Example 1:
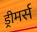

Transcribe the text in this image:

ड्रीमर्स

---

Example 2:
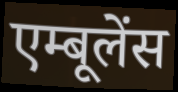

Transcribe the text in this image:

एम्बूलेंस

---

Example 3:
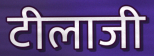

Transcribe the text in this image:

टीलाजी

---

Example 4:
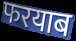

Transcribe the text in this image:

फरयाब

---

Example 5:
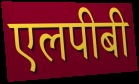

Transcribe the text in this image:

एलपीबी